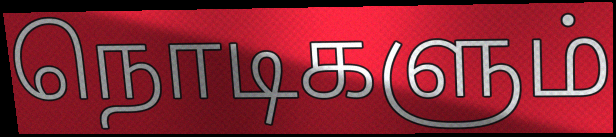
நொடிகளும்